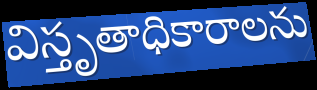
విస్తృతాధికారాలను